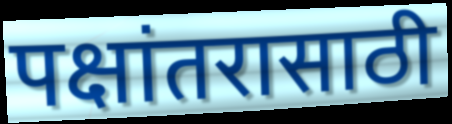
पक्षांतरासाठी